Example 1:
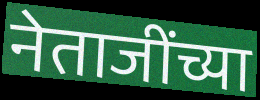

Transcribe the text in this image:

नेताजींच्या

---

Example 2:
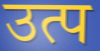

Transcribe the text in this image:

उत्प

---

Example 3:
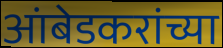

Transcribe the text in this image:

आंबेडकरांच्या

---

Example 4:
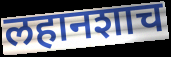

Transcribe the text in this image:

लहानशाच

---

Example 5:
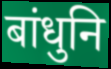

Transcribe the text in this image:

बांधुनि